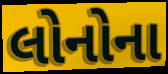
લોનોના